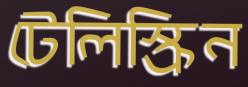
টেলিস্ক্রিন